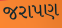
જરાપણ